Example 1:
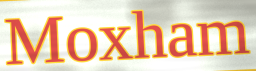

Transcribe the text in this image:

Moxham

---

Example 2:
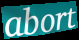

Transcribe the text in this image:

abort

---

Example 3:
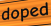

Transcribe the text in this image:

doped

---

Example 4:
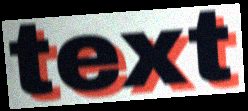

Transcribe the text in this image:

text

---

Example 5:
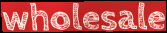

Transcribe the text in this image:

wholesale